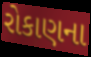
રોકાણના